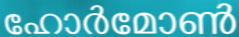
ഹോർമോൺ